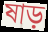
ষাড়